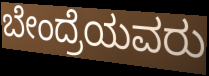
ಬೇಂದ್ರೆಯವರು